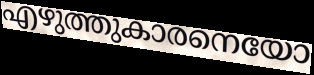
എഴുത്തുകാരനെയോ